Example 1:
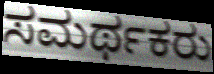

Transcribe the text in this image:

ಸಮರ್ಥಕರು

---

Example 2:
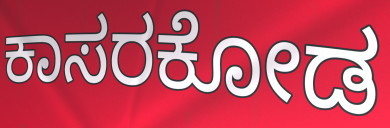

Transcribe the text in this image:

ಕಾಸರಕೋಡ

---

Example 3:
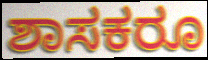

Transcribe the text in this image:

ಶಾಸಕರೂ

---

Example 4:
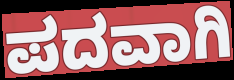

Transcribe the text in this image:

ಪದವಾಗಿ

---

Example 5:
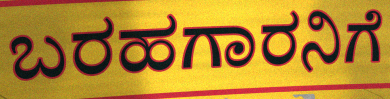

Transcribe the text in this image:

ಬರಹಗಾರನಿಗೆ